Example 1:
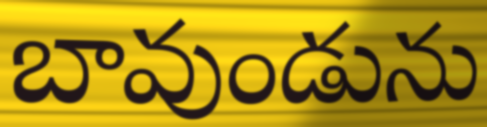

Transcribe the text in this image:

బావుండును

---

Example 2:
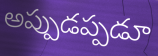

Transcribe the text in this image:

అప్పుడప్పడూ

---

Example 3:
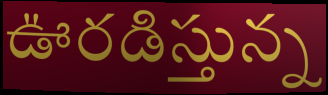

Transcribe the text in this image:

ఊరడిస్తున్న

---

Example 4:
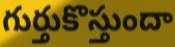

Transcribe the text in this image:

గుర్తుకొస్తుందా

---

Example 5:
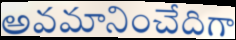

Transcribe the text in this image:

అవమానించేదిగా